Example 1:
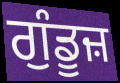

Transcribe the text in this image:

ਗੁੰਡੂਜ਼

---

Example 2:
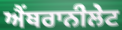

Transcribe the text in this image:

ਐਂਥਰਾਨੀਲੇਟ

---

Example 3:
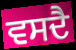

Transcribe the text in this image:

ਵਸਦੈ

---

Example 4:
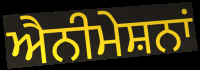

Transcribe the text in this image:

ਐਨੀਮੇਸ਼ਨਾਂ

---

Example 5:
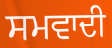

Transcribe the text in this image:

ਸਮਵਾਦੀ